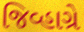
જિવ્હાગ્રે